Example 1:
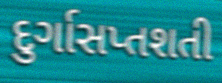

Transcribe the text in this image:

દુર્ગાસપ્તશતી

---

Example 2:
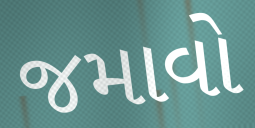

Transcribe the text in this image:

જમાવો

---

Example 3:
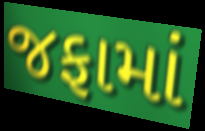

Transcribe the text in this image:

જફામાં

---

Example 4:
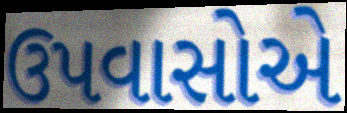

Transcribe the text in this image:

ઉપવાસોએ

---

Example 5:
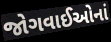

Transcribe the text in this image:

જોગવાઈઓનાં